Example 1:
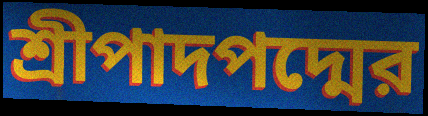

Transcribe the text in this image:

শ্রীপাদপদ্মের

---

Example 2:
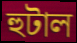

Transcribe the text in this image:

হুটাল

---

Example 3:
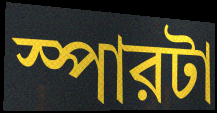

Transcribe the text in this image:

স্পারটা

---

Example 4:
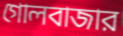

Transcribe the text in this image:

গোলবাজার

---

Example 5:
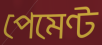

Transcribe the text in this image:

পেমেণ্ট